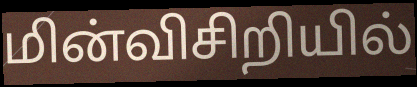
மின்விசிறியில்